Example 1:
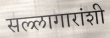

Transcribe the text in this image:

सल्लागारांशी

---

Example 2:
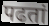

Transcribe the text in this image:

पढतां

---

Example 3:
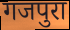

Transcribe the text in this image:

गजपुरा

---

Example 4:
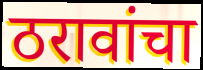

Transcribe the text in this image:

ठरावांचा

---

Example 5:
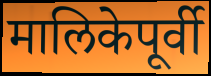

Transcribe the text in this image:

मालिकेपूर्वी